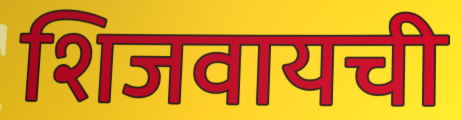
शिजवायची